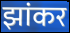
झांकर